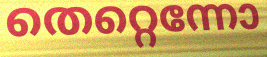
തെറ്റെന്നോ